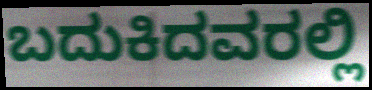
ಬದುಕಿದವರಲ್ಲಿ